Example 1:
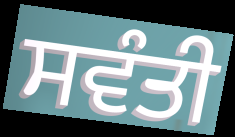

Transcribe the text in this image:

ਸਵੰਤੀ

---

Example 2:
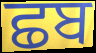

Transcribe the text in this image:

ਛਬ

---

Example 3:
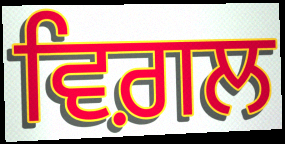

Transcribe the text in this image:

ਵਿਗ਼ਲ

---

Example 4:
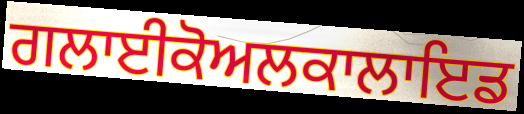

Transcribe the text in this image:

ਗਲਾਈਕੋਅਲਕਾਲਾਇਡ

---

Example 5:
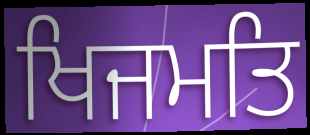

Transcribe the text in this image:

ਖਿਜਮਤਿ